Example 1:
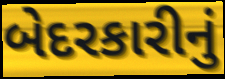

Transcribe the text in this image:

બેદરકારીનું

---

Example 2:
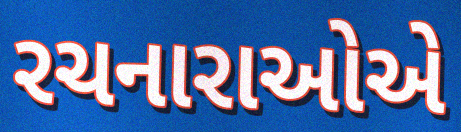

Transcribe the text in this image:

રચનારાઓએ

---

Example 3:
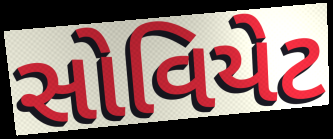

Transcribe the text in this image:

સોવિયેટ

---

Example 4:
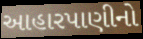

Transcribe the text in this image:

આહારપાણીનો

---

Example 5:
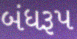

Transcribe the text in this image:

બંધરૂપ